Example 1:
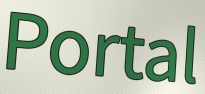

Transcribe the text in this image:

Portal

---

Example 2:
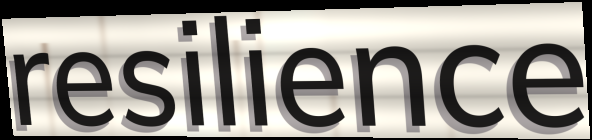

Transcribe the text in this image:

resilience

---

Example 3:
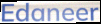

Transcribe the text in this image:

Edaneer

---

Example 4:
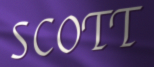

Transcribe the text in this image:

SCOTT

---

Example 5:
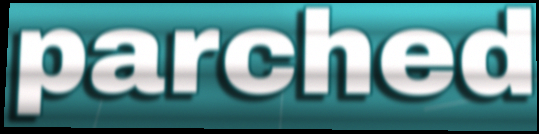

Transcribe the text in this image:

parched